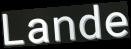
Lande